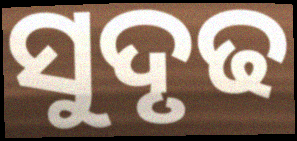
ସୁଦୃଢ